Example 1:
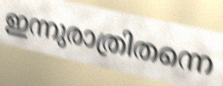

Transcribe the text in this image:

ഇന്നുരാത്രിതന്നെ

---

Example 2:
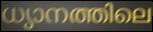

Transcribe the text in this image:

ധ്യാനത്തിലെ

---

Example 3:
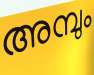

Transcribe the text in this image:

അമ്പും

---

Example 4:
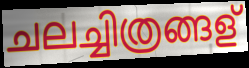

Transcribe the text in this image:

ചലച്ചിത്രങ്ങള്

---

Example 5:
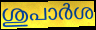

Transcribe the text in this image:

ശുപാർശ